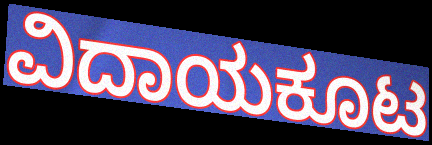
ವಿದಾಯಕೂಟ